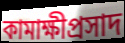
কামাক্ষীপ্রসাদ